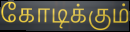
கோடிக்கும்